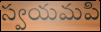
స్వయమపి